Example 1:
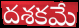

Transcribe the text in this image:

దశకమే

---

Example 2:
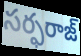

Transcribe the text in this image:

సర్ఫరాజ్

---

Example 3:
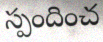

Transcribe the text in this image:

స్పందించ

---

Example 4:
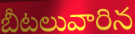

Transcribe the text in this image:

బీటలువారిన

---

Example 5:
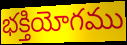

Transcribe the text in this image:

భక్తియోగము